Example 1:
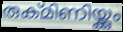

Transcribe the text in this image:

രുക്മിണിയ്ക്കും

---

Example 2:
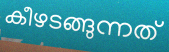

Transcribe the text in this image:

കീഴടങ്ങുന്നത്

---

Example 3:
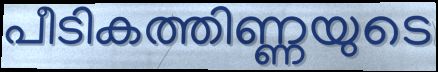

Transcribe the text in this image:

പീടികത്തിണ്ണയുടെ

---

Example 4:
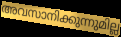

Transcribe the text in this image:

അവസാനിക്കുന്നുമില്ല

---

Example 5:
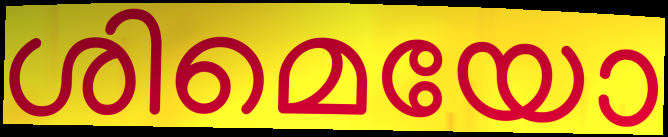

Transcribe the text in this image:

ശിമെയോ